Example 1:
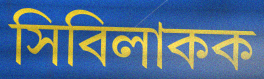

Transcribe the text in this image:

সিবিলাকক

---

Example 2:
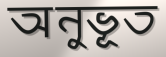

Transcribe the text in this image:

অনুভূত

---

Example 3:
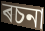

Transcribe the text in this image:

ৰচনা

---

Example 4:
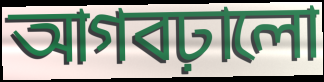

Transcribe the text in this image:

আগবঢ়ালো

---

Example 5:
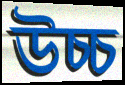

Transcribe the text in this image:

উচ্চ